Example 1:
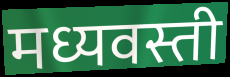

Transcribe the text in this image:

मध्यवस्ती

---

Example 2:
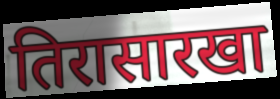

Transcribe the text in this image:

तिरासारखा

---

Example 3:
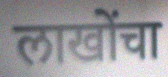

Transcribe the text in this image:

लाखोंचा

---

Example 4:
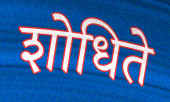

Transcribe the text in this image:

शोधिते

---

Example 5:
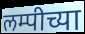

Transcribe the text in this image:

लम्पीच्या